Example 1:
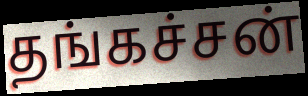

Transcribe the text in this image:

தங்கச்சன்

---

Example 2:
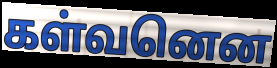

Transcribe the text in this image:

கள்வனென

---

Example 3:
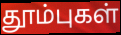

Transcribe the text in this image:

தூம்புகள்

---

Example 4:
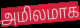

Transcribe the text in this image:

அமிலமாக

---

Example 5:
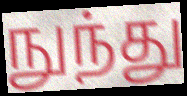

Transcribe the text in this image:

நுந்து